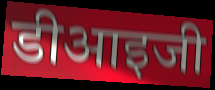
डीआइजी